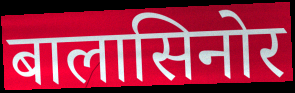
बालासिनोर